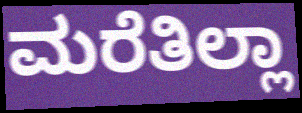
ಮರೆತಿಲ್ಲಾ